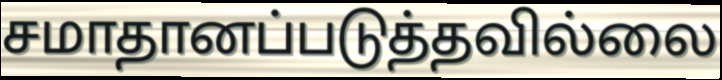
சமாதானப்படுத்தவில்லை